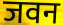
जवन